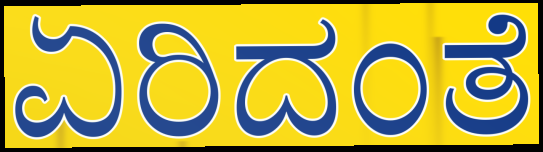
ಏರಿದಂತೆ